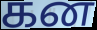
கன